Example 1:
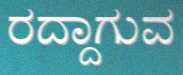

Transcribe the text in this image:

ರದ್ದಾಗುವ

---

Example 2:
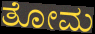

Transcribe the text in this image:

ತೋಮ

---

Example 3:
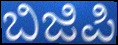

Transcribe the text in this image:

ಬಿಜಿಪಿ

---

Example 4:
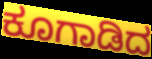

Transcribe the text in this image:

ಕೂಗಾಡಿದ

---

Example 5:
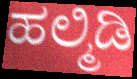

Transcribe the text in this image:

ಹಲ್ಮಿಡಿ